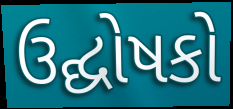
ઉદ્ઘોષકો